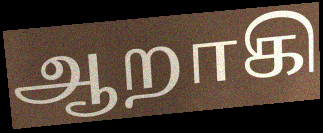
ஆறாகி